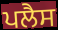
ਪਲੈਸ